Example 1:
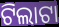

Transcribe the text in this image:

ଟିଲାଟା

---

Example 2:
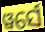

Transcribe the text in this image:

ୱର୍ସେ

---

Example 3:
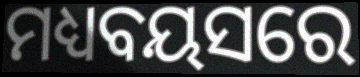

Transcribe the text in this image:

ମଧ୍ୟବୟସରେ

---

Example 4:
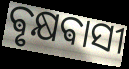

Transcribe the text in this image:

ଵୃକ୍ଷଵାସୀ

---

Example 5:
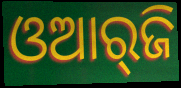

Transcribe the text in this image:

ଓଆର୍‌ଜି